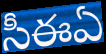
సీఈఏ